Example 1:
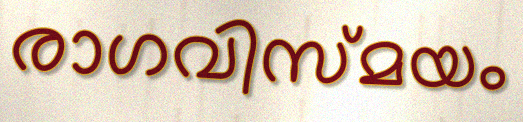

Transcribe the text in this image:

രാഗവിസ്മയം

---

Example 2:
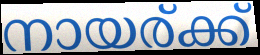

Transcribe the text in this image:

നായര്ക്ക്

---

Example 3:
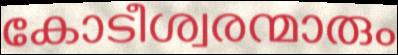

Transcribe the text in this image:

കോടീശ്വരന്മാരും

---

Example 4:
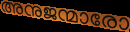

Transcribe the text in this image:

അനുജന്മാരോ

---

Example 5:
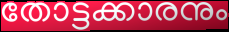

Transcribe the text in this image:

തോട്ടക്കാരനും